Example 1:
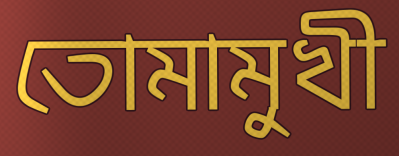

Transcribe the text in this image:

তোমামুখী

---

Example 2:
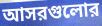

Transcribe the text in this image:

আসরগুলোর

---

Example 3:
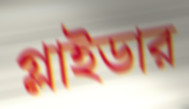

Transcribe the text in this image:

গ্লাইডার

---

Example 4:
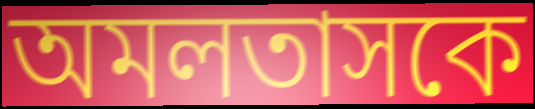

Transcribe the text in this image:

অমলতাসকে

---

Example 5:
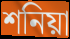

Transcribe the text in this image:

শনিয়া